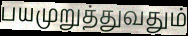
பயமுறுத்துவதும்